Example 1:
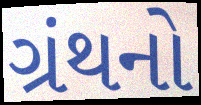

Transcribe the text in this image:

ગ્રંથનો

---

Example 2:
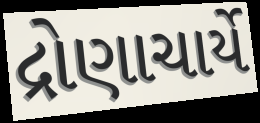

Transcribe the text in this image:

દ્રોણાચાર્યે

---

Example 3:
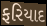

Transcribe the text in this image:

ફરિયાદ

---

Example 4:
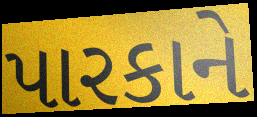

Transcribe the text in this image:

પારકાને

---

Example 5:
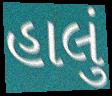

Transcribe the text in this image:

હાલું